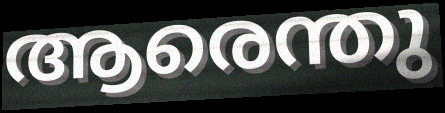
ആരെന്തു